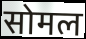
सोमल